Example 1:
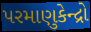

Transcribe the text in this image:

પરમાણુકેન્દ્રો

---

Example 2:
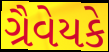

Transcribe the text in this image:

ગ્રૈવેયકે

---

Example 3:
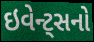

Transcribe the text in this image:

ઇવેન્ટ્સનો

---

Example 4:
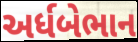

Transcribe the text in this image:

અર્ધબેભાન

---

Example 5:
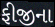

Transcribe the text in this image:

ફીજીના